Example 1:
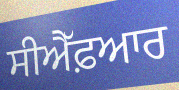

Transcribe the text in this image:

ਸੀਐੱਫ਼ਆਰ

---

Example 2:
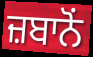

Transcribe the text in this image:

ਜ਼ਬਾਨੋਂ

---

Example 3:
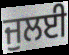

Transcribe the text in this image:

ਜੁਲਈ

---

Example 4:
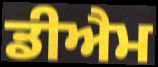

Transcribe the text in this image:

ਡੀਐਮ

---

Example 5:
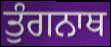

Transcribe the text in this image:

ਤੁੰਗਨਾਥ